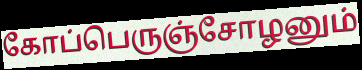
கோப்பெருஞ்சோழனும்